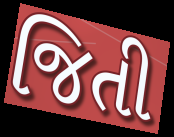
જિતી